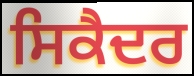
ਸਿਕੈਦਰ